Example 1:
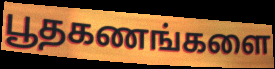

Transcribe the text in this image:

பூதகணங்களை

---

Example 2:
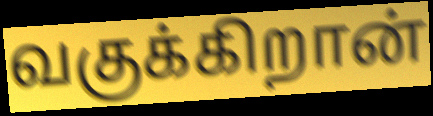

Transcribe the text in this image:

வகுக்கிறான்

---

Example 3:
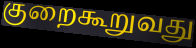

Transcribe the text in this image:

குறைகூறுவது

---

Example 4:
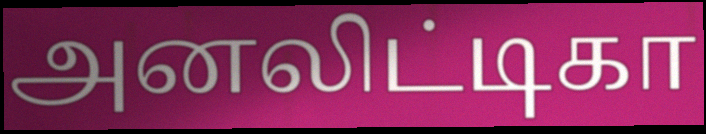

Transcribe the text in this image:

அனலிட்டிகா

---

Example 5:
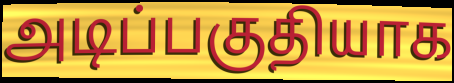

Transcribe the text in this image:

அடிப்பகுதியாக